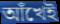
আঁখেই